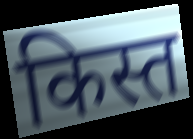
किस्त